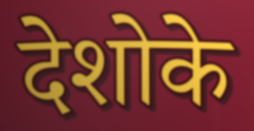
देशोके